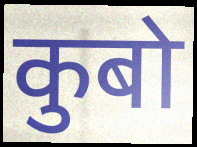
कुबो